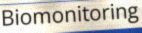
Biomonitoring